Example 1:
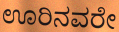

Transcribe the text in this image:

ಊರಿನವರೇ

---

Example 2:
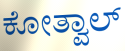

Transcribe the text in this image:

ಕೋತ್ವಾಲ್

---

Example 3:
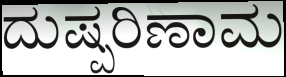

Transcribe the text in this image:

ದುಷ್ಪರಿಣಾಮ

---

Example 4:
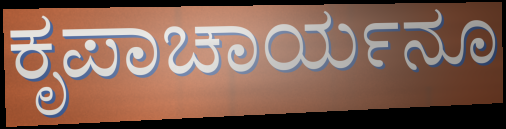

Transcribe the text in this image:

ಕೃಪಾಚಾರ್ಯನೂ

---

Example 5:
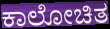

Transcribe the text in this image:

ಕಾಲೋಚಿತ